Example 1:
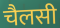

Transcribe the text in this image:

चैलसी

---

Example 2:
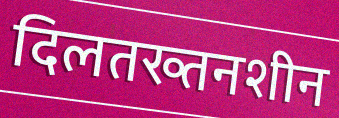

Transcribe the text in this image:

दिलतख्तनशीन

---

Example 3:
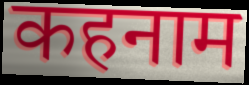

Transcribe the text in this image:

कहनाम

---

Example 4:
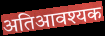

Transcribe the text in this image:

अतिआवश्यक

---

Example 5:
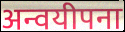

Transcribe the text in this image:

अन्वयीपना